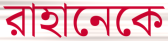
রাহানেকে